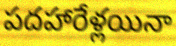
పదహారేళ్లయినా